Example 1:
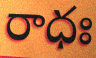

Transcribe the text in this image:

రాధః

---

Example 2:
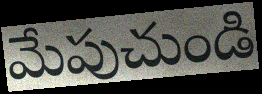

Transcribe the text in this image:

మేపుచుండి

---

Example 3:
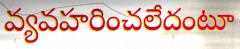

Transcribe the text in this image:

వ్యవహరించలేదంటూ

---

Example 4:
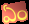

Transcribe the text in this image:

ఏం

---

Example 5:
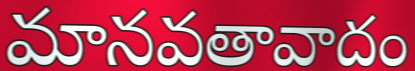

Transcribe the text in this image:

మానవతావాదం